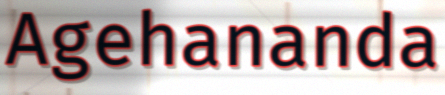
Agehananda